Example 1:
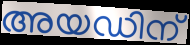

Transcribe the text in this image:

അയഡിന്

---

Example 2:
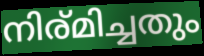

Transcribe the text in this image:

നിര്മിച്ചതും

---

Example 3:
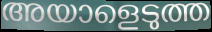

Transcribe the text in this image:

അയാളെടുത്ത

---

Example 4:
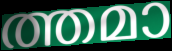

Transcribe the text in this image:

ത്തമാ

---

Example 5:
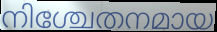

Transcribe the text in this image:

നിശ്ചേതനമായ